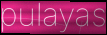
pulayas